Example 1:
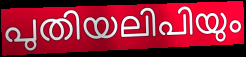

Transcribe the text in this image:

പുതിയലിപിയും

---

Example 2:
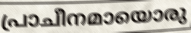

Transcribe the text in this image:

പ്രാചീനമായൊരു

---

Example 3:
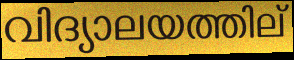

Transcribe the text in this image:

വിദ്യാലയത്തില്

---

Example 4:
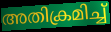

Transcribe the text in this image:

അതിക്രമിച്ച്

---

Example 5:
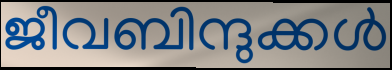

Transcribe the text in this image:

ജീവബിന്ദുക്കൾ